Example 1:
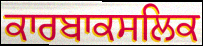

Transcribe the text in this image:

ਕਾਰਬਾਕਸਲਿਕ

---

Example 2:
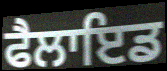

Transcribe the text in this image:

ਫੈਲਾਇਡ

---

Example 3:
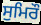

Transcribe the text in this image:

ਸੁਮਿਰੌ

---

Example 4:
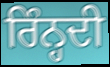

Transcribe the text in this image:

ਰਿੰਨ੍ਹਦੀ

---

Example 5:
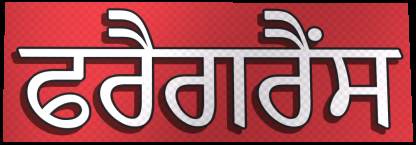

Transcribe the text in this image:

ਫਰੈਗਰੈਂਸ